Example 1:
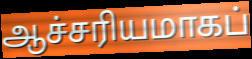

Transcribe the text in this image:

ஆச்சரியமாகப்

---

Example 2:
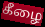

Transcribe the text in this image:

கீழை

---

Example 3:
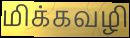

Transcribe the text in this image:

மிக்கவழி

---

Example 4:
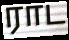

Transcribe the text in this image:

ராட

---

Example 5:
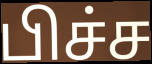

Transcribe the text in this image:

பிச்ச